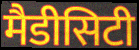
मैडीसिटी